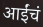
आईंचं